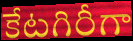
కేటగిరీగా